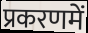
प्रकरणमें